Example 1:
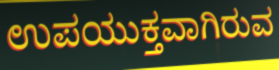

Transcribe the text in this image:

ಉಪಯುಕ್ತವಾಗಿರುವ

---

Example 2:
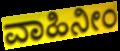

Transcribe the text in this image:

ವಾಹಿನೀಂ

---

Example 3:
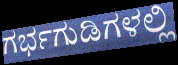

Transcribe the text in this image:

ಗರ್ಭಗುಡಿಗಳಲ್ಲಿ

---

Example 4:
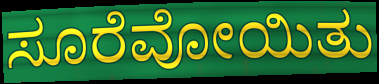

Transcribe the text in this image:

ಸೂರೆವೋಯಿತು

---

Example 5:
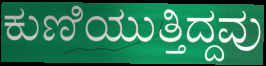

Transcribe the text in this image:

ಕುಣಿಯುತ್ತಿದ್ದವು